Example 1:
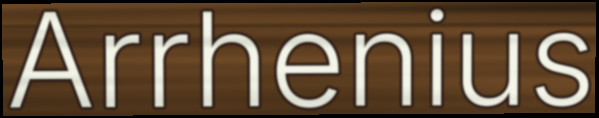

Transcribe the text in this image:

Arrhenius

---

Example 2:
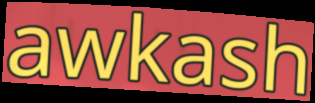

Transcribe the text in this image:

awkash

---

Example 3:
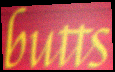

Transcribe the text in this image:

butts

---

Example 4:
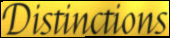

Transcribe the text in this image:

Distinctions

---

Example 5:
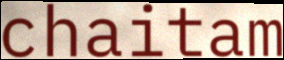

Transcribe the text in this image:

chaitam